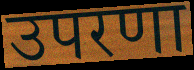
उपरणा